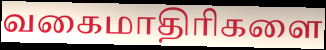
வகைமாதிரிகளை